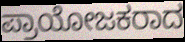
ಪ್ರಾಯೋಜಕರಾದ